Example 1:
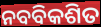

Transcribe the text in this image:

ନବବିକଶିତ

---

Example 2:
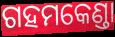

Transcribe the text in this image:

ଗହମକେଣ୍ଡା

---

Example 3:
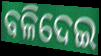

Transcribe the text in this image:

ବଳିଦେଇ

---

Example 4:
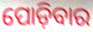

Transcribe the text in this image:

ପୋଡ଼ିବାର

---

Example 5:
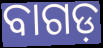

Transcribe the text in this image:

ବାଗଡ଼